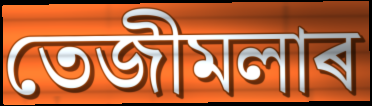
তেজীমলাৰ